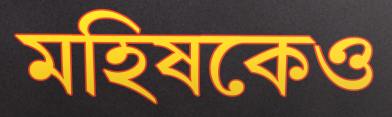
মহিষকেও